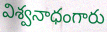
విశ్వనాధంగారు